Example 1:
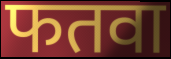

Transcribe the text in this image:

फतवा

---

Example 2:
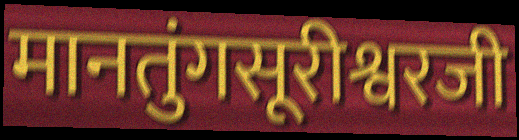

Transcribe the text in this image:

मानतुंगसूरीश्वरजी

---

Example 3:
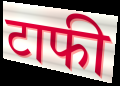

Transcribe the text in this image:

टाफी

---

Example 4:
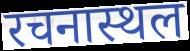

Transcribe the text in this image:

रचनास्थल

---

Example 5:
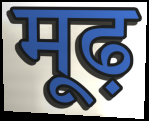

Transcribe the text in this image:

मूढ़